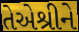
તેએશ્રીને